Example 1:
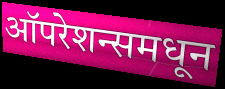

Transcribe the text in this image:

ऑपरेशन्समधून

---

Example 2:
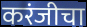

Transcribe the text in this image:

करंजीचा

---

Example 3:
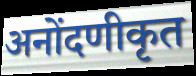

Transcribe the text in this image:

अनोंदणीकृत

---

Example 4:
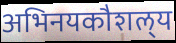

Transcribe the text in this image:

अभिनयकौशल्य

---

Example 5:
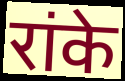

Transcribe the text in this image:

रांके